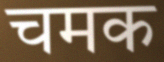
चमक